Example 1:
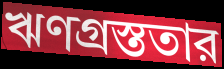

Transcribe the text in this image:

ঋণগ্রস্ততার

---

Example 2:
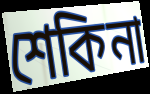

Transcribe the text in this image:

শেকিনা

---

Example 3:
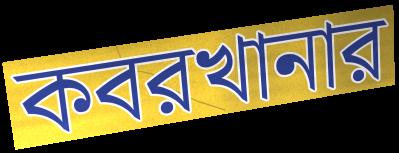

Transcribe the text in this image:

কবরখানার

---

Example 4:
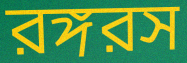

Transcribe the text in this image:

রঙ্গরস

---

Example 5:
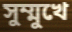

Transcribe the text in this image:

সুম্মুখে